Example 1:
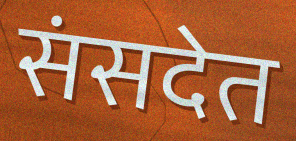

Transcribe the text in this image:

संसदेत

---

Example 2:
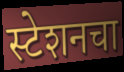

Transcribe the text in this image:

स्टेशनचा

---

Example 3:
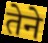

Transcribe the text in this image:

तेने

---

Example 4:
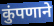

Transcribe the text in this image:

कुंपणाने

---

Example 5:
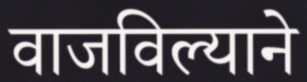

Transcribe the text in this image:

वाजविल्याने